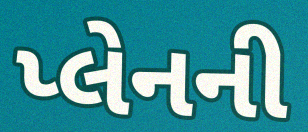
પ્લેનની